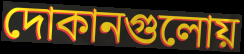
দোকানগুলোয়